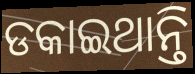
ଡକାଇଥାନ୍ତି